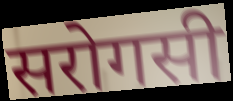
सरोगसी